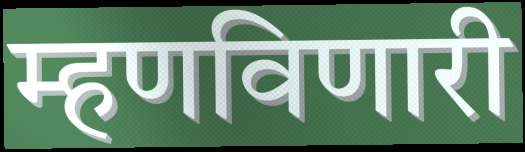
म्हणविणारी